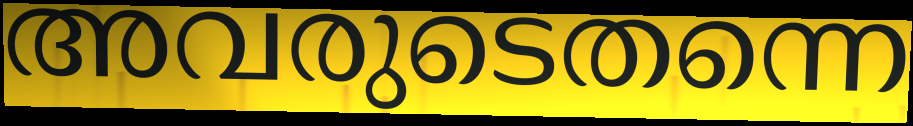
അവരുടെതന്നെ